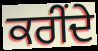
ਕਰੀਂਦੇ